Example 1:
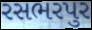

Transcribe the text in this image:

રસભરપુર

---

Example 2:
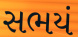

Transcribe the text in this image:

સભયં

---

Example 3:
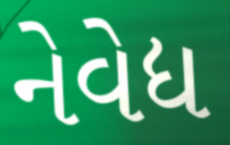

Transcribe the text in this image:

નેવેદ્ય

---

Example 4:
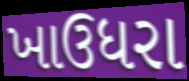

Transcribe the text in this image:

ખાઉધરા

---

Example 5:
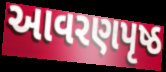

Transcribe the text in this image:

આવરણપૃષ્ઠ